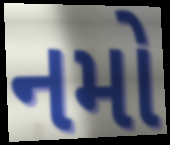
નમો